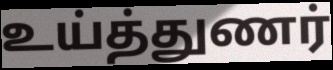
உய்த்துணர்